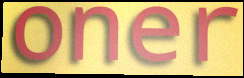
oner